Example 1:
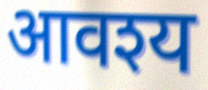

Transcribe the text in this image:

आवश्य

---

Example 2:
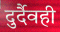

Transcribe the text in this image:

दुर्दैवही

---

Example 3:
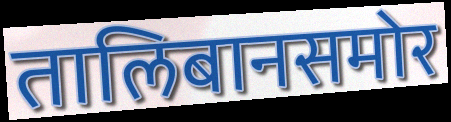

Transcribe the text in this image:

तालिबानसमोर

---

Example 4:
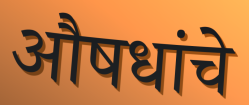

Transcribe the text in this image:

औषधांचे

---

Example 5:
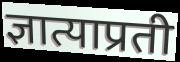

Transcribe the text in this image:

ज्ञात्याप्रती